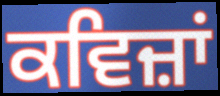
ਕਵਿਜ਼ਾਂ